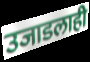
उजाडलाही